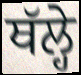
ਥੱਲ੍ਹੇ